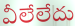
వీలేలేదు